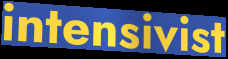
intensivist